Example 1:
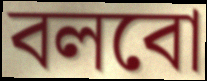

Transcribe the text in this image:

বলবো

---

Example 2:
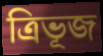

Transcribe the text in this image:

ত্ৰিভূজ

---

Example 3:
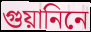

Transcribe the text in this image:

গুয়ানিনে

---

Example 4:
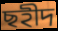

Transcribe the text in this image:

ছহীদ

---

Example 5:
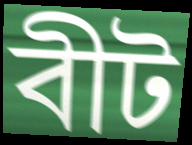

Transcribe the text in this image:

বীট